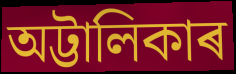
অট্টালিকাৰ